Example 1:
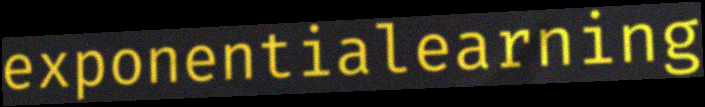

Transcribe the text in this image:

exponentialearning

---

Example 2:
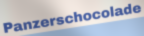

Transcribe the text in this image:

Panzerschocolade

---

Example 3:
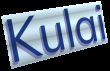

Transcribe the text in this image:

Kulai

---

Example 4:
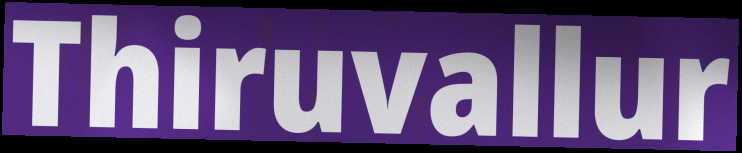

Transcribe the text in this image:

Thiruvallur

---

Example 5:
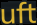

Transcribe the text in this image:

uft